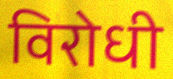
विरोधी